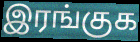
இரங்குக